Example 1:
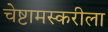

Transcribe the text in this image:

चेष्टामस्करीला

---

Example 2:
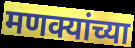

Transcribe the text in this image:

मणक्यांच्या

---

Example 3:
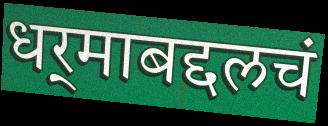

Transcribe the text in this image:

धर्माबद्दलचं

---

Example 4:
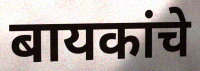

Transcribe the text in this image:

बायकांचे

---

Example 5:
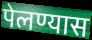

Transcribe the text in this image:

पेलण्यास